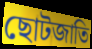
ছোটজাতি